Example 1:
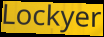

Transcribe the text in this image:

Lockyer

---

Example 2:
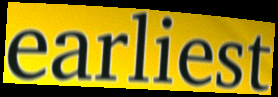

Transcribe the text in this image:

earliest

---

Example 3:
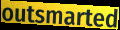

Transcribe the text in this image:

outsmarted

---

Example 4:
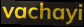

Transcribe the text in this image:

vachayi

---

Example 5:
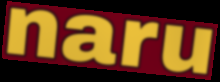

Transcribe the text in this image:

naru